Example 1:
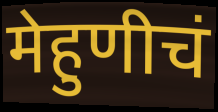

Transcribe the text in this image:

मेहुणीचं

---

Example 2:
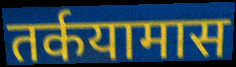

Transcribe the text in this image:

तर्कयामास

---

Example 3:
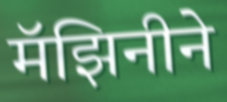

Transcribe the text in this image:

मॅझिनीने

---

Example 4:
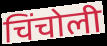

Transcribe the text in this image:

चिंचोली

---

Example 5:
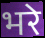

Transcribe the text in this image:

भरे